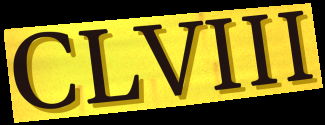
CLVIII